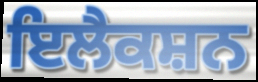
ਇਲੈਕਸ਼ਨ